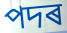
পদৰ